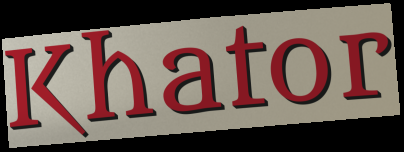
Khator